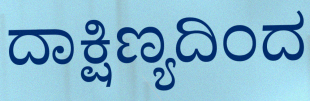
ದಾಕ್ಷಿಣ್ಯದಿಂದ